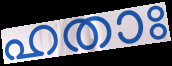
ഹതാഃ